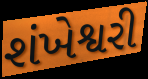
શંખેશ્વરી